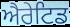
ਐਰੇਟਿਡ